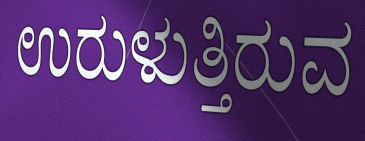
ಉರುಳುತ್ತಿರುವ